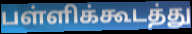
பள்ளிக்கூடத்து